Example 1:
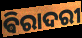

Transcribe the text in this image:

ଵିରାଦରୀ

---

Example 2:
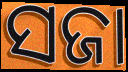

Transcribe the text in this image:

ସଜା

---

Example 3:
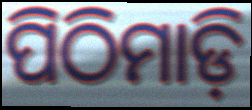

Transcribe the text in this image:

ପିଠିମାଡ଼ି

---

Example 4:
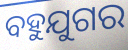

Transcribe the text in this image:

ବହୁଯୁଗର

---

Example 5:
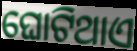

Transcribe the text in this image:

ଘୋଟିଥାଏ